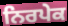
ਨਿਰਪੇਕ